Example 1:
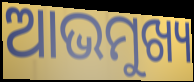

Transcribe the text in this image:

ଆଭମୁଖ୍ୟ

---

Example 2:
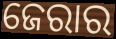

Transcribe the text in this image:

ଜେରାର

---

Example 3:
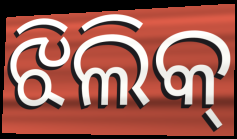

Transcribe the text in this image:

ଝିଲିକ୍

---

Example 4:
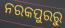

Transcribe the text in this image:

ନରକପୁରରୁ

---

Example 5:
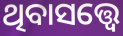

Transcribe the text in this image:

ଥିବାସତ୍ତ୍ଵେ